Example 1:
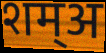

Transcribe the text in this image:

शम्अ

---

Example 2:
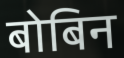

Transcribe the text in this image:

बोबिन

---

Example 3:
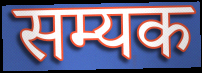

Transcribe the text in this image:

सम्यक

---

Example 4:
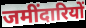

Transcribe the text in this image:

जमींदारियों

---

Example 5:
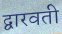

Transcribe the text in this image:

द्वारवती